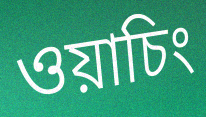
ওয়াচিং